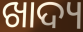
ଖାଦ୍ୟ